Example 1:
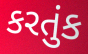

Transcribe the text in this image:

કરતુંક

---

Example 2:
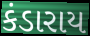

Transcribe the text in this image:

કંડારાય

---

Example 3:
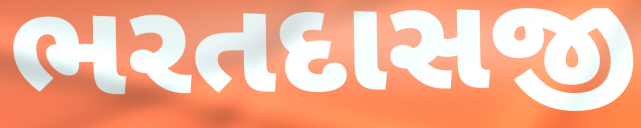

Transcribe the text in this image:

ભરતદાસજી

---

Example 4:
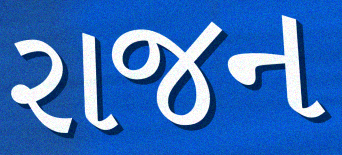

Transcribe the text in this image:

રાજન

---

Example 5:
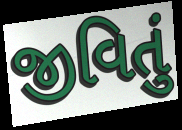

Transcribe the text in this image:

જીવિતું